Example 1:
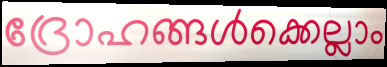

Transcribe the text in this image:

ദ്രോഹങ്ങൾക്കെല്ലാം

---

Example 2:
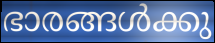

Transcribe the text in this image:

ഭാരങ്ങൾക്കു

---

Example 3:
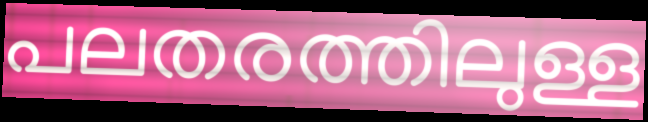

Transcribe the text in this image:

പലതരത്തിലുള്ള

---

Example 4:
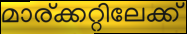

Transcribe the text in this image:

മാര്ക്കറ്റിലേക്ക്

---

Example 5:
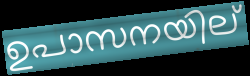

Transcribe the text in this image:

ഉപാസനയില്